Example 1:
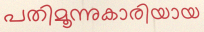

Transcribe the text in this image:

പതിമൂന്നുകാരിയായ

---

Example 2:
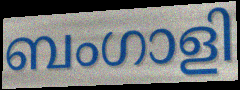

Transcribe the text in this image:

ബംഗാളി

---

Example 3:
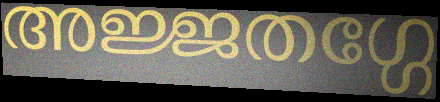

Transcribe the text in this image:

അജ്ജതഗ്ഗേ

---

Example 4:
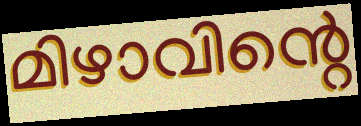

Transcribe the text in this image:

മിഴാവിന്റെ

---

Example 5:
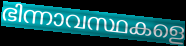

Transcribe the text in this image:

ഭിന്നാവസ്ഥകളെ